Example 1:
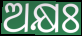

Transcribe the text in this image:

ଅକ୍ଷଃ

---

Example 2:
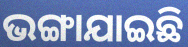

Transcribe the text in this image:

ଭଙ୍ଗାଯାଇଛି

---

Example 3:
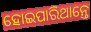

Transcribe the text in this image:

ହୋଇପାରିଥାନ୍ତେ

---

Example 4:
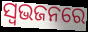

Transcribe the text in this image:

ସ୍ଵଭଜନରେ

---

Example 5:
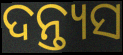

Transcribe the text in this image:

ଦନ୍ତ୍ୟସ